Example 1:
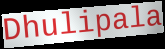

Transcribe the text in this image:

Dhulipala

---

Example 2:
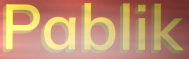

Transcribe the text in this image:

Pablik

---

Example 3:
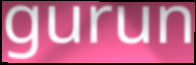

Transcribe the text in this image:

gurun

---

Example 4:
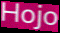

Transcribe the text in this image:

Hojo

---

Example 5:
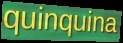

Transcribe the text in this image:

quinquina